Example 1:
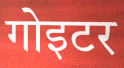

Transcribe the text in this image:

गोइटर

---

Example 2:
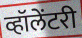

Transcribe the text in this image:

व्हॉलेंटरी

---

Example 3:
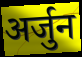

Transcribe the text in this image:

अर्जुन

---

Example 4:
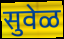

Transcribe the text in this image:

सुवेळ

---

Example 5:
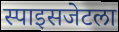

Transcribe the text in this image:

स्पाइसजेटला